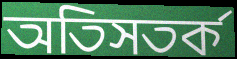
অতিসতর্ক